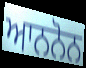
ਆਨਨੋਨ